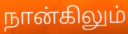
நான்கிலும்